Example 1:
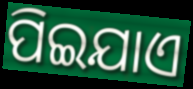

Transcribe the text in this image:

ପିଇଯାଏ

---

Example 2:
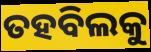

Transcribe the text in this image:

ତହବିଲକୁ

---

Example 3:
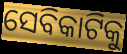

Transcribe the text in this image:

ସେବିକାଟିକୁ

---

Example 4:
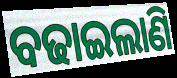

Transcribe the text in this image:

ବଢାଇଲାଣି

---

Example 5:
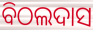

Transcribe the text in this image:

ବିଠଲଦାସ